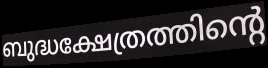
ബുദ്ധക്ഷേത്രത്തിന്റെ